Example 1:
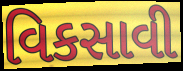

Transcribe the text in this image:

વિકસાવી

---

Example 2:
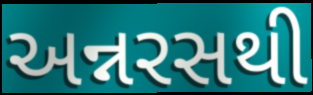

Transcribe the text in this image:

અન્નરસથી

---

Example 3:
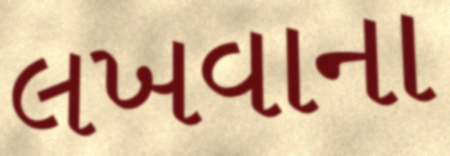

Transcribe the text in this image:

લખવાના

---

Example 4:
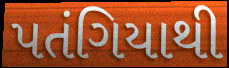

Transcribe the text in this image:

પતંગિયાથી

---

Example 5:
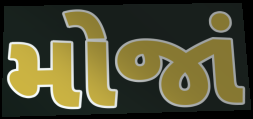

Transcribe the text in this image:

મોજાં